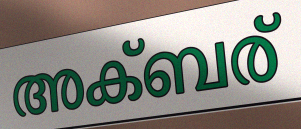
അക്ബര്